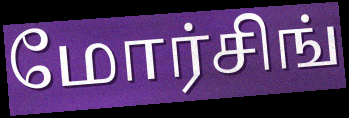
மோர்சிங்